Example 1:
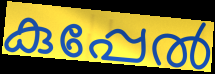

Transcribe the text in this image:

കുപ്പേൽ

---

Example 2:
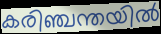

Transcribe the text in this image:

കരിഞ്ചന്തയിൽ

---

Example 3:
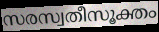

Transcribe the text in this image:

സരസ്വതീസൂക്തം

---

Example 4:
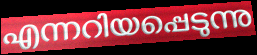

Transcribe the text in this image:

എന്നറിയപ്പെടുന്നു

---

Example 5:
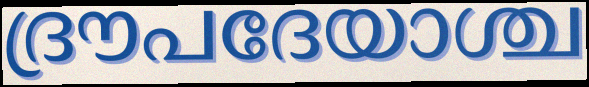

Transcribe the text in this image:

ദ്രൗപദേയാശ്ച